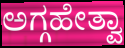
ಅಗ್ಗಹೇತ್ವಾ